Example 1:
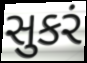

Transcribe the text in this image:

સુકરં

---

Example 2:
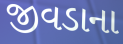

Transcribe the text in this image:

જીવડાના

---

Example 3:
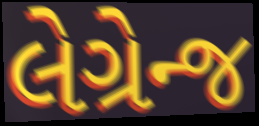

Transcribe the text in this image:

લેગ્રેન્જ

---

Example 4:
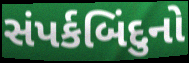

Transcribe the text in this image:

સંપર્કબિંદુનો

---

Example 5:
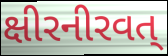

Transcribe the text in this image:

ક્ષીરનીરવત્